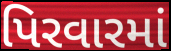
પિરવારમાં